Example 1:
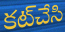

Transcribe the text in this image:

కట్‌చేసి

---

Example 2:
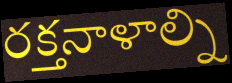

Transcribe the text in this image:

రక్తనాళాల్ని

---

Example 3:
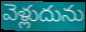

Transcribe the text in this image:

వెళ్లుదును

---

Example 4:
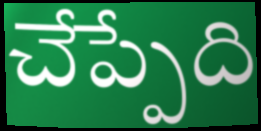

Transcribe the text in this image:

చేప్పేది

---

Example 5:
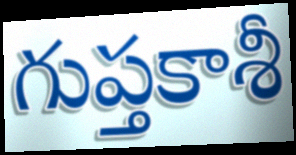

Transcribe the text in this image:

గుప్తకాశీ